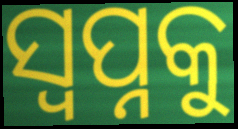
ସ୍ବପ୍ନକୁ